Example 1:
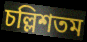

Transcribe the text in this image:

চল্লিশতম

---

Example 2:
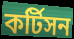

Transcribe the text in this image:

কর্টিসন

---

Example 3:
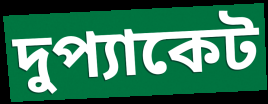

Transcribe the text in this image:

দুপ্যাকেট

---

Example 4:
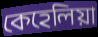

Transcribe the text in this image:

কেহেলিয়া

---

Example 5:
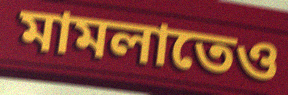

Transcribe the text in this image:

মামলাতেও